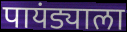
पायंड्याला